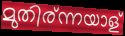
മുതിര്ന്നയാള്